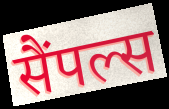
सैंपल्स